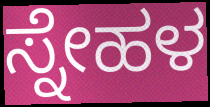
ಸ್ನೇಹಳ